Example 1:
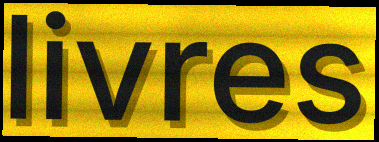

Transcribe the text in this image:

livres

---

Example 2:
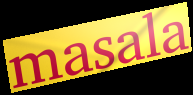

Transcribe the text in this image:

masala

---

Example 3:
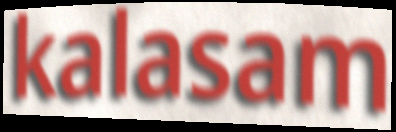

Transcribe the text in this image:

kalasam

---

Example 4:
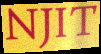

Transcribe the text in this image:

NJIT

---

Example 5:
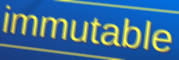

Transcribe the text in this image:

immutable